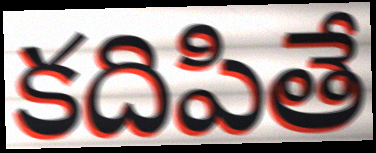
కదిపితే